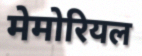
मेमोरियल